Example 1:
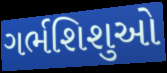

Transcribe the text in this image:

ગર્ભશિશુઓ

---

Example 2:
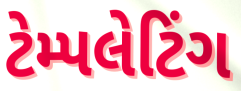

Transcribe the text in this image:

ટેમ્પલેટિંગ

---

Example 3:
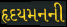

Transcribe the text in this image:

હૃદયમનની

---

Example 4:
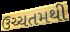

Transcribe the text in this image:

ઉચ્ચતમથી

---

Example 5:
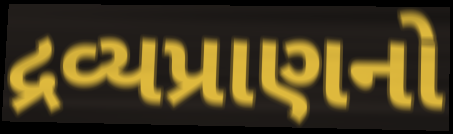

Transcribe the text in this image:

દ્રવ્યપ્રાણનો